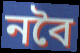
নবৈ